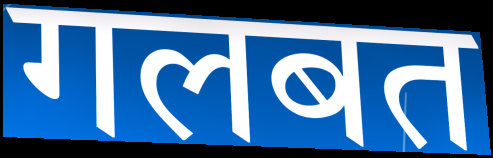
गलबत